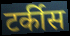
टर्कीस